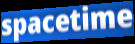
spacetime